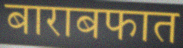
बाराबफात